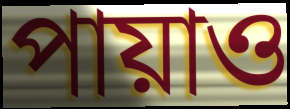
পায়াও